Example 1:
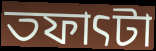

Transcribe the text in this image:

তফাৎটা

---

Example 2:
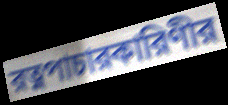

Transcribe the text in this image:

রত্নপাচারকারিণীর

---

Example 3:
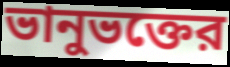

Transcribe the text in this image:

ভানুভক্তের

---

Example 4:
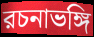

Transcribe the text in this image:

রচনাভঙ্গি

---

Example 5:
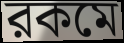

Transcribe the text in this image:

রকমে